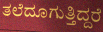
ತಲೆದೂಗುತ್ತಿದ್ದರೆ